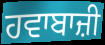
ਹਵਾਬਾਜ਼ੀ